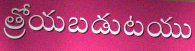
త్రోయబడుటయు